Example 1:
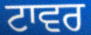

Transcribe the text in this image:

ਟਾਵਰ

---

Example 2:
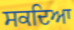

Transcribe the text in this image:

ਸਕਦਿਆ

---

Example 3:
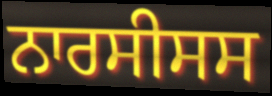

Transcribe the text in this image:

ਨਾਰਸੀਸਸ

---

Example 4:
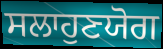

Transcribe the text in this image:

ਸਲਾਹੁਣਯੋਗ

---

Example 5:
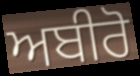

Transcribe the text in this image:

ਅਬੀਰੋ